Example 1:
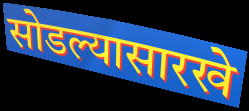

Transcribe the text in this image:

सोडल्यासारखे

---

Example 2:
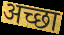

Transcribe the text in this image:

अच्छा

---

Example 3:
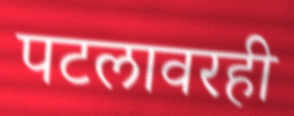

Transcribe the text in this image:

पटलावरही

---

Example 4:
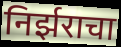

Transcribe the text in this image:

निर्झराचा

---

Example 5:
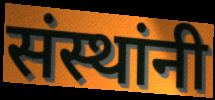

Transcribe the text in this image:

संस्थांनी